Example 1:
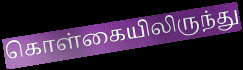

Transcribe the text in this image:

கொள்கையிலிருந்து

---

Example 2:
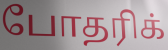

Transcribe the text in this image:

போதரிக்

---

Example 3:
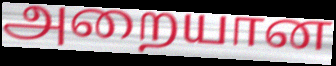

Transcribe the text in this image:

அறையான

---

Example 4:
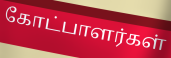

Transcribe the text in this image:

கோட்பாளர்கள்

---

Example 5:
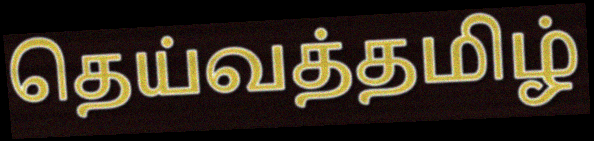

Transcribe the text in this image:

தெய்வத்தமிழ்